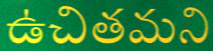
ఉచితమని